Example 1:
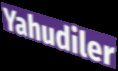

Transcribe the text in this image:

Yahudiler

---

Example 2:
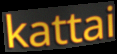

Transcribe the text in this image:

kattai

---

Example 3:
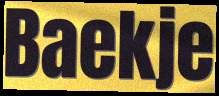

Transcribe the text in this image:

Baekje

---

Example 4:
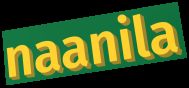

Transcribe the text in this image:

naanila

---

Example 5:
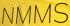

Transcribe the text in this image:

NMMS